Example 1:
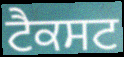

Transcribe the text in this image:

ਟੈਕਸਟ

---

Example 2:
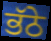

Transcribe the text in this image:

ਭੱਠੇ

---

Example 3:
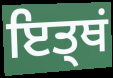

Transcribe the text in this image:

ਇਤ੍ਥਂ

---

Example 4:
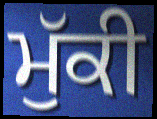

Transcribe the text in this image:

ਮੁੱਕੀ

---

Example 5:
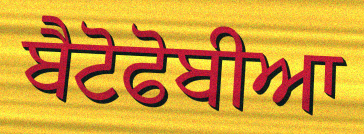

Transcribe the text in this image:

ਬੈਟੋਫੋਬੀਆ